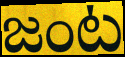
జంట